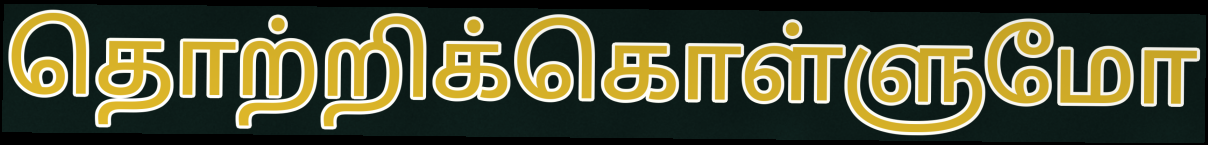
தொற்றிக்கொள்ளுமோ